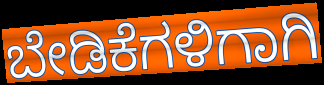
ಬೇಡಿಕೆಗಳಿಗಾಗಿ